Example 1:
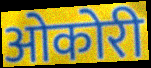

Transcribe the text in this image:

ओकोरी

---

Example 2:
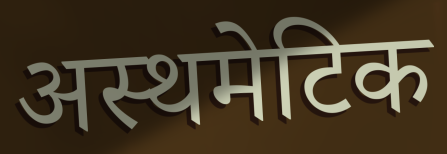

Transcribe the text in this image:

अस्थमेटिक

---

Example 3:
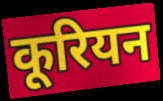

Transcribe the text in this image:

कूरियन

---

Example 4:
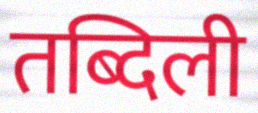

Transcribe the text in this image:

तब्दिली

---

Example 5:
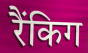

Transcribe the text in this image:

रैंकिग